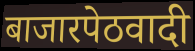
बाजारपेठवादी